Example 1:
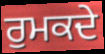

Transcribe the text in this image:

ਰੁਮਕਦੇ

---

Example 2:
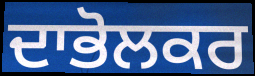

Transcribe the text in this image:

ਦਾਭੋਲਕਰ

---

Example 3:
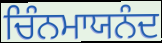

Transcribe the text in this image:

ਚਿੰਨਮਾਯਨੰਦ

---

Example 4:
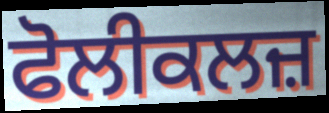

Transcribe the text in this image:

ਫੋਲੀਕਲਜ਼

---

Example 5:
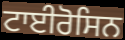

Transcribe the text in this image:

ਟਾਈਰੋਸਿਨ